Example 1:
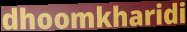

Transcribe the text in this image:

dhoomkharidi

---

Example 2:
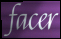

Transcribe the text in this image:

facer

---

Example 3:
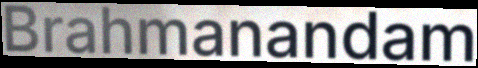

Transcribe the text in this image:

Brahmanandam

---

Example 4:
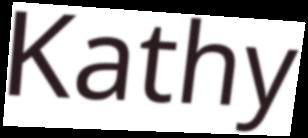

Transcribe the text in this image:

Kathy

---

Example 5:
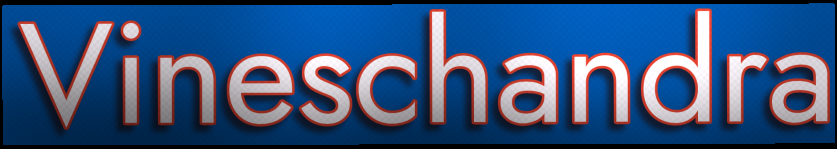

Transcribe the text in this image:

Vineschandra